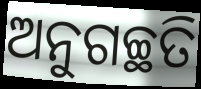
ଅନୁଗଚ୍ଛତି